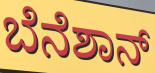
ಬೆನೆಶಾನ್